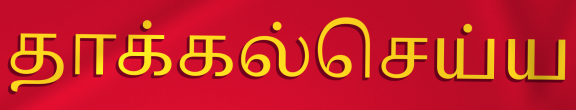
தாக்கல்செய்ய